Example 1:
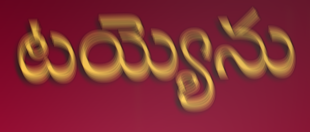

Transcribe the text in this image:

టయ్యెను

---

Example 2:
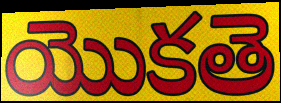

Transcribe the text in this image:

యొకతె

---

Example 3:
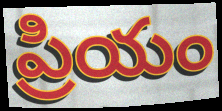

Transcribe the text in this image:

ప్రియం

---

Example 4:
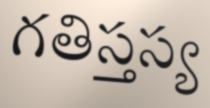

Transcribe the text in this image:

గతిస్తస్య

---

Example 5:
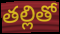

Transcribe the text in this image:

తల్లితో